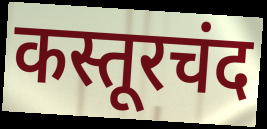
कस्तूरचंद